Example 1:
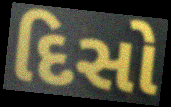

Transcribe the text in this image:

દિસો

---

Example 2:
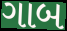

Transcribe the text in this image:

ગાબ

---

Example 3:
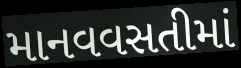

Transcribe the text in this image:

માનવવસતીમાં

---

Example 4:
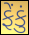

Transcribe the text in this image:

ફેંકું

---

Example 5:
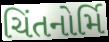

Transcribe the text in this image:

ચિંતનોર્મિ